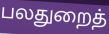
பலதுறைத்